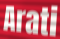
Arati